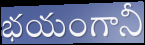
భయంగానీ